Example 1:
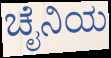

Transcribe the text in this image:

ಚೈನಿಯ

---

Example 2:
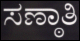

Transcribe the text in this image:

ಸಣ್ಠಾತಿ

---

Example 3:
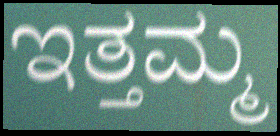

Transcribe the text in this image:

ಇತ್ತಮ್ಮ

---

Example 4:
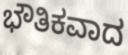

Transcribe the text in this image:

ಭೌತಿಕವಾದ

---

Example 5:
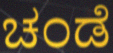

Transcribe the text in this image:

ಚಂಡೆ